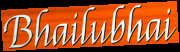
Bhailubhai